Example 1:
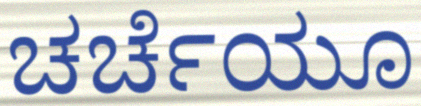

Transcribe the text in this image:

ಚರ್ಚೆಯೂ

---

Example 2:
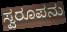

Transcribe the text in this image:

ಸ್ವರೂಪನು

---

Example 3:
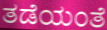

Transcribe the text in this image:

ತಡೆಯಂತೆ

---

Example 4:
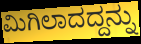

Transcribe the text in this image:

ಮಿಗಿಲಾದದ್ದನ್ನು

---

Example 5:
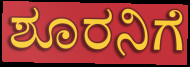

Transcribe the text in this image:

ಶೂರನಿಗೆ